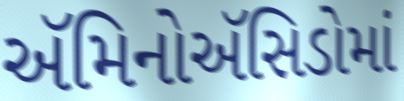
ઍમિનોઍસિડોમાં